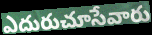
ఎదురుచూసేవారు